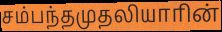
சம்பந்தமுதலியாரின்